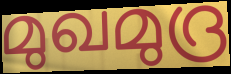
മുഖമുദ്ര